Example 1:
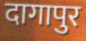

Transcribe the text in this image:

दागापुर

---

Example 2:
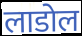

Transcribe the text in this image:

लाडोल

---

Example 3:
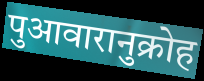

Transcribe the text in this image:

पुआवारानुक्रोह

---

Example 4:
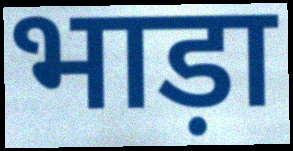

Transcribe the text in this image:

भाड़ा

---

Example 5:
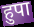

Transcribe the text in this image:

हुपा